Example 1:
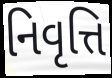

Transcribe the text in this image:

નિવૃત્તિ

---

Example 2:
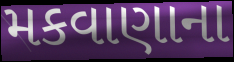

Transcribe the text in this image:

મકવાણાના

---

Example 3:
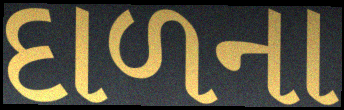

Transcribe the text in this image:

દાળના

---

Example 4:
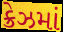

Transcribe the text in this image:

ક્રેઝમાં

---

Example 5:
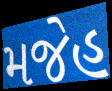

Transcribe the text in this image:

મજેહ